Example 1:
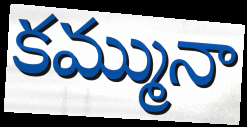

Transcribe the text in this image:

కమ్మునా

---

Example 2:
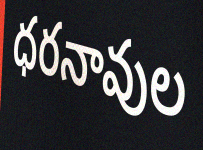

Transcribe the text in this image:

ధరనావుల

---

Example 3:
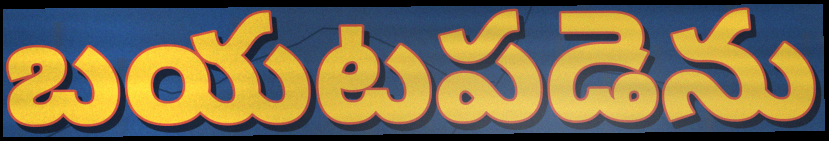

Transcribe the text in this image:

బయటపడెను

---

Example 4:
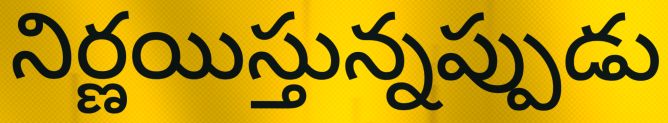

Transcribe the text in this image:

నిర్ణయిస్తున్నప్పుడు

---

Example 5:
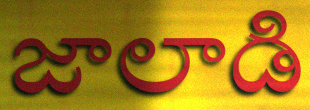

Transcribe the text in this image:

జాలాడి